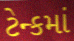
ટેન્કમાં